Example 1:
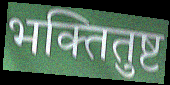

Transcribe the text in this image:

भक्तितुष्ट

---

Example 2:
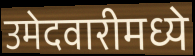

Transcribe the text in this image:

उमेदवारीमध्ये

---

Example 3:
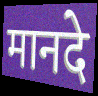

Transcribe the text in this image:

मानदे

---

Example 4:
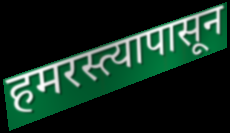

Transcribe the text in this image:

हमरस्त्यापासून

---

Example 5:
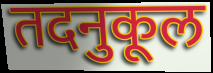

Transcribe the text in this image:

तदनुकूल